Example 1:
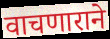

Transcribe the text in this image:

वाचणाराने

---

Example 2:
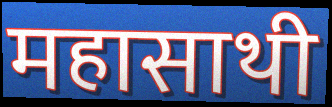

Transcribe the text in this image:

महासाथी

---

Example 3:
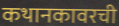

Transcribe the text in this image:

कथानकावरची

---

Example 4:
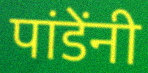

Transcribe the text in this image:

पांडेंनी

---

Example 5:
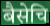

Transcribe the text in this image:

बैसेचि